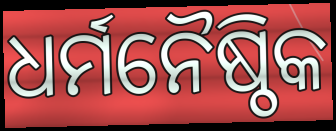
ଧର୍ମନୈଷ୍ଠିକ